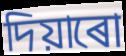
দিয়াৰো